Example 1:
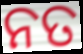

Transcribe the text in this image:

ନତ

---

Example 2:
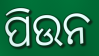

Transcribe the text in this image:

ପିଉନ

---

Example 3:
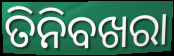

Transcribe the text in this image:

ତିନିବଖରା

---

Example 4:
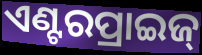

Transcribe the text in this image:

ଏଣ୍ଟରପ୍ରାଇଜ୍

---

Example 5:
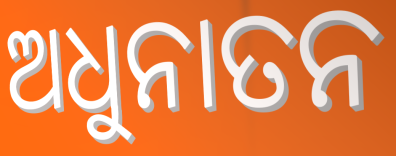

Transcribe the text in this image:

ଅଧୁନାତନ